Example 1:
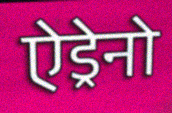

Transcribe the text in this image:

ऐड्रेनो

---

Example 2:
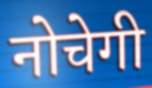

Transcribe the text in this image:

नोचेगी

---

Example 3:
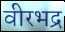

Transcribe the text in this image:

वीरभद्र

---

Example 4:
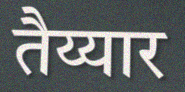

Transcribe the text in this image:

तैय्यार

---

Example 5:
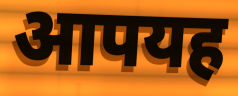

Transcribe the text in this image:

आपयह